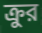
ক্রুর